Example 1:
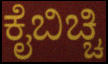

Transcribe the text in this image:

ಕೈಬಿಚ್ಚಿ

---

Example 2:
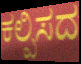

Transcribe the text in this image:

ಕಲ್ಪಿಸದ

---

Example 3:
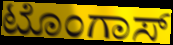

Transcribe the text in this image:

ಟೊಂಗಾಸ್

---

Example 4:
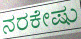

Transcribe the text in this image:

ನರಕೇಷು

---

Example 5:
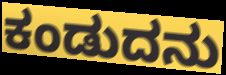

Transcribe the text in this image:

ಕಂಡುದನು